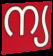
ന്യ